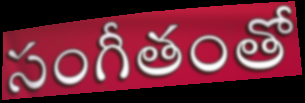
సంగీతంతో